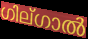
ഗില്ഗാൽ